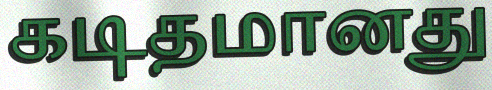
கடிதமானது